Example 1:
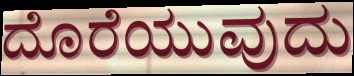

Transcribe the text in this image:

ದೊರೆಯುವುದು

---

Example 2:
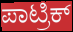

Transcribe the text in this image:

ಪಾಟ್ರಿಕ್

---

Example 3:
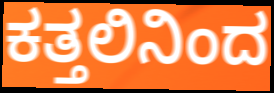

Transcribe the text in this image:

ಕತ್ತಲಿನಿಂದ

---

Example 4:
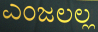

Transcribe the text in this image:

ಎಂಜಲಲ್ಲ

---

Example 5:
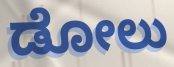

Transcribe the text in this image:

ಡೋಲು